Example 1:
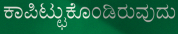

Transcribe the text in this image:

ಕಾಪಿಟ್ಟುಕೊಂಡಿರುವುದು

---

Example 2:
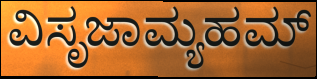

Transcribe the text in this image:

ವಿಸೃಜಾಮ್ಯಹಮ್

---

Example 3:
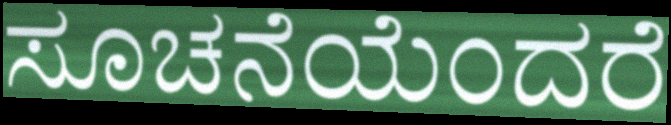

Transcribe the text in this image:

ಸೂಚನೆಯೆಂದರೆ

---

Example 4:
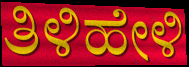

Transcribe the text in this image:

ತಿಳಿಹೇಳಿ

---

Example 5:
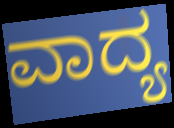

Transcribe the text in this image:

ವಾದ್ಯ